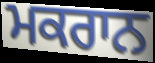
ਮਕਰਾਨ